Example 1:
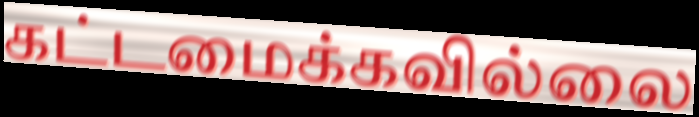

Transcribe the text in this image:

கட்டமைக்கவில்லை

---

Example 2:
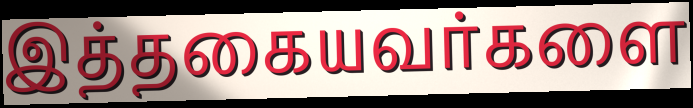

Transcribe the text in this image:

இத்தகையவர்களை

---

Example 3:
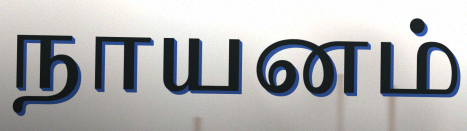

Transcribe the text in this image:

நாயனம்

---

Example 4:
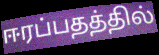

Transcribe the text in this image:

ஈரப்பதத்தில்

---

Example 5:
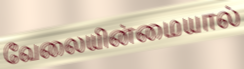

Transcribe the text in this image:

வேலையின்மையால்